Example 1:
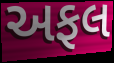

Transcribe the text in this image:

અફલ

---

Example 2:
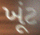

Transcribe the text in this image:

ખૂંટ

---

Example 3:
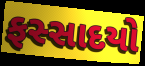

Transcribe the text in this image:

ફસ્સાદયો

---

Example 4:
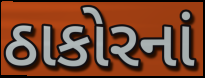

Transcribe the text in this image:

ઠાકોરનાં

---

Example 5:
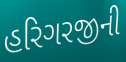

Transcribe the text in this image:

હરિગરજીની